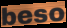
beso